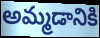
అమ్మడానికి